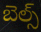
బెల్స్